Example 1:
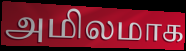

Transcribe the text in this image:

அமிலமாக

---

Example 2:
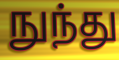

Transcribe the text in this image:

நுந்து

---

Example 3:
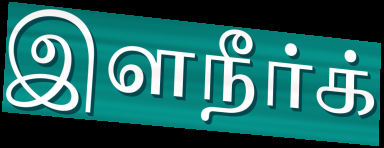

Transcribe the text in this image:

இளநீர்க்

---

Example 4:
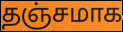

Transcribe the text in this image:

தஞ்சமாக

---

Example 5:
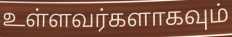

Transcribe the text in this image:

உள்ளவர்களாகவும்